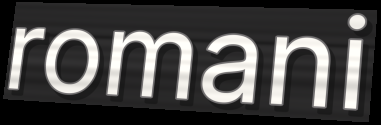
romani